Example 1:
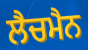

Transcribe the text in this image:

ਲੈਚਮੈਨ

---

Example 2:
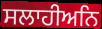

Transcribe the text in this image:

ਸਲਾਹੀਅਨਿ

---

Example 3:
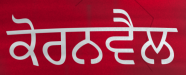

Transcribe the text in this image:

ਕੋਰਨਵੈਲ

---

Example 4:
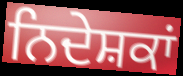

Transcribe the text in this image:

ਨਿਦੇਸ਼ਕਾਂ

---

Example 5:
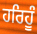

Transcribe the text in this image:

ਹਰਿਹੂੰ